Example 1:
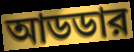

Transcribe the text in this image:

আডডার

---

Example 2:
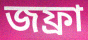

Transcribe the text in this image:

জফ্রা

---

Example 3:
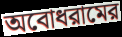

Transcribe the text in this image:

অবোধরামের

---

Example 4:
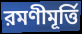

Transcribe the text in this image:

রমণীমূর্ত্তি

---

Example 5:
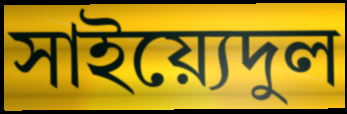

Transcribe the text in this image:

সাইয়্যেদুল